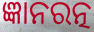
ଜ୍ଞାନରତ୍ନ